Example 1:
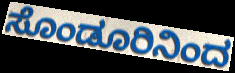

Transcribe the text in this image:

ಸೊಂಡೂರಿನಿಂದ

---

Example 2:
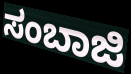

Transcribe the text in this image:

ಸಂಬಾಜಿ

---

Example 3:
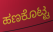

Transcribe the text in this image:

ಹಣಕೊಟ್ಟ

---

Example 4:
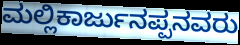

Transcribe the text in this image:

ಮಲ್ಲಿಕಾರ್ಜುನಪ್ಪನವರು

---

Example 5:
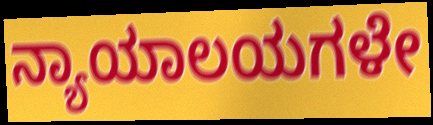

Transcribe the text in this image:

ನ್ಯಾಯಾಲಯಗಳೇ